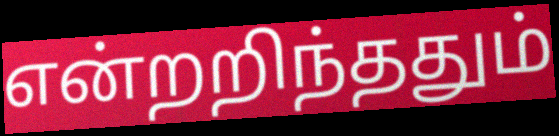
என்றறிந்ததும்